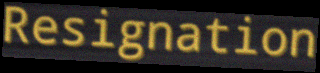
Resignation